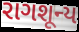
રાગશૂન્ય